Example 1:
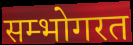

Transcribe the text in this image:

सम्भोगरत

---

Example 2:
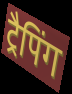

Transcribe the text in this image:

ट्रैपिंग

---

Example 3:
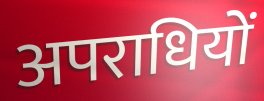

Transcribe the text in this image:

अपराधियों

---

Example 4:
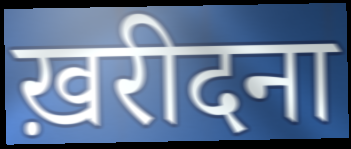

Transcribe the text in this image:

ख़रीदना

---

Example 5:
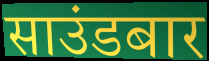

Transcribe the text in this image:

साउंडबार